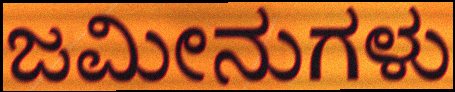
ಜಮೀನುಗಳು